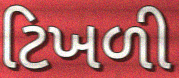
ટિખળી